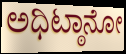
ಅಧಿಟ್ಠಾನೋ